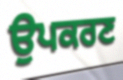
ਉਪਕਰਣ